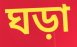
ঘড়া